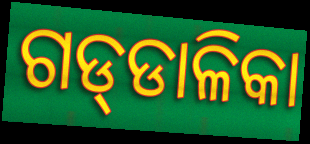
ଗଡ୍‍ଡାଳିକା